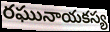
రఘునాయకస్య